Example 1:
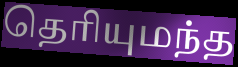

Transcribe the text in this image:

தெரியுமந்த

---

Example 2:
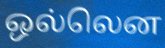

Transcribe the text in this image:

ஒல்லென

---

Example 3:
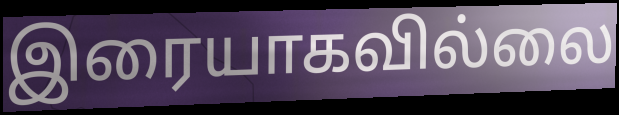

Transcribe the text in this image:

இரையாகவில்லை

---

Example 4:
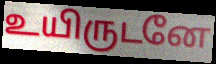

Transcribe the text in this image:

உயிருடனே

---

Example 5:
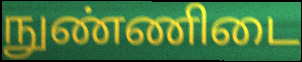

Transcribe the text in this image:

நுண்ணிடை